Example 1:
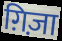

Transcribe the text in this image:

ग़िज़ा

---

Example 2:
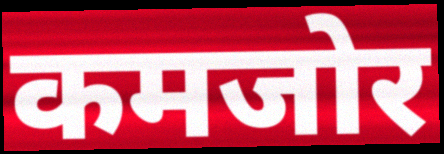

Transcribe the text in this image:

कमजोर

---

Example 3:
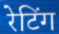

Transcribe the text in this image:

रेटिंग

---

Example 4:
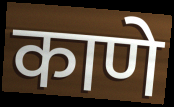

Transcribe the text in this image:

काणे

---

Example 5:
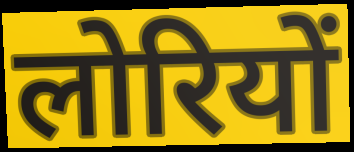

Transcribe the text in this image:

लोरियों